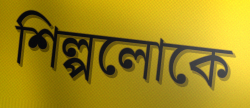
শিল্পলোকে